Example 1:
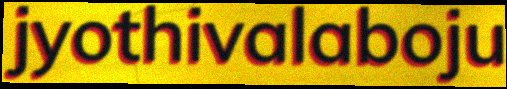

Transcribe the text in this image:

jyothivalaboju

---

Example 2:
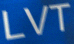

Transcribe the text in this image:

LVT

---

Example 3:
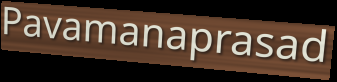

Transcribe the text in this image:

Pavamanaprasad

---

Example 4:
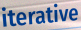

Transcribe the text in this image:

iterative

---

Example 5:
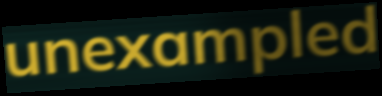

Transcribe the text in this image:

unexampled